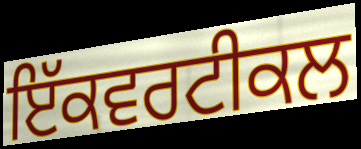
ਇੱਕਵਰਟੀਕਲ